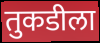
तुकडीला